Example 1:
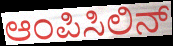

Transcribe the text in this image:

ಆಂಪಿಸಿಲಿನ್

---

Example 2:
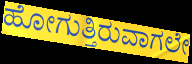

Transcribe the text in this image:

ಹೋಗುತ್ತಿರುವಾಗಲೇ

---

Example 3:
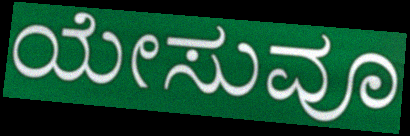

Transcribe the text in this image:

ಯೇಸುವೂ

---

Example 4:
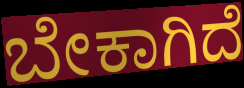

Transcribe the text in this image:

ಬೇಕಾಗಿದೆ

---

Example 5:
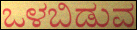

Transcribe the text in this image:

ಒಳಬಿಡುವ